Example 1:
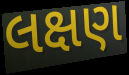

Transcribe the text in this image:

લક્ષણ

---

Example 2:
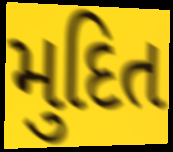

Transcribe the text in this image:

મુદિત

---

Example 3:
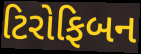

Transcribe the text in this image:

ટિરોફિબન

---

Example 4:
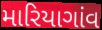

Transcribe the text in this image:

મારિયાગાંવ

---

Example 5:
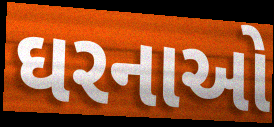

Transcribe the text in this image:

ઘરનાઓ